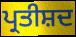
ਪ੍ਰਤੀਸ਼ਦ